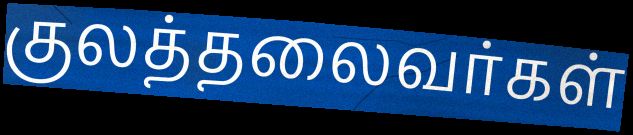
குலத்தலைவர்கள்